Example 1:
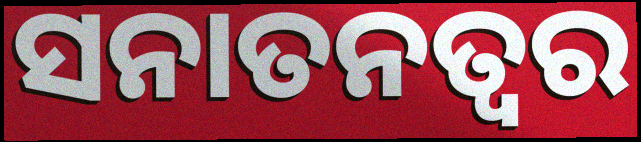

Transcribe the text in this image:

ସନାତନତ୍ୱର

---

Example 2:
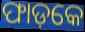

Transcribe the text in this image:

ଫାଡ଼କେ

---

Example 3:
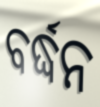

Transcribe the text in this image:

ବର୍ଦ୍ଧନ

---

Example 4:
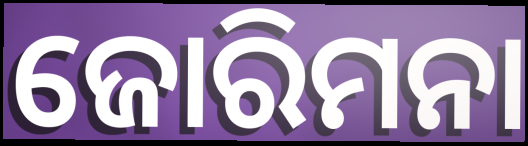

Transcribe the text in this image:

ଜୋରିମନା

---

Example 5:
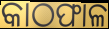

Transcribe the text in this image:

କାଠଫାଳ